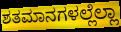
ಶತಮಾನಗಳಲ್ಲೆಲ್ಲಾ